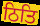
ਠਿਤਿ